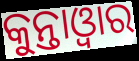
କୁନ୍ତାଓ୍ୱାର